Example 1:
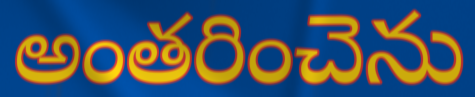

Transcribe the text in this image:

అంతరించెను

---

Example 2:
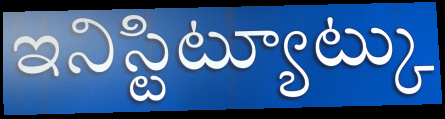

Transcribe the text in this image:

ఇనిస్టిట్యూట్కు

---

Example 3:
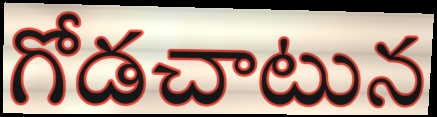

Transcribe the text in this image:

గోడచాటున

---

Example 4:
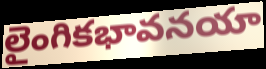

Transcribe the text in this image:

లైంగికభావనయా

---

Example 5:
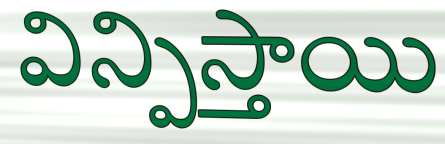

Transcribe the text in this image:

విన్పిస్తాయి